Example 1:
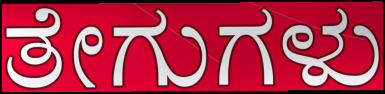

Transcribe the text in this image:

ತೇಗುಗಳು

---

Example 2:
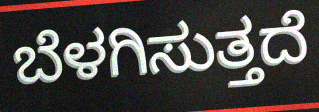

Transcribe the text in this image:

ಬೆಳಗಿಸುತ್ತದೆ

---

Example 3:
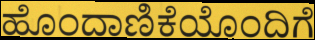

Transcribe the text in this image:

ಹೊಂದಾಣಿಕೆಯೊಂದಿಗೆ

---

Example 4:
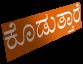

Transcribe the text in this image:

ಕೊಡುತ್ತಾರೆ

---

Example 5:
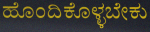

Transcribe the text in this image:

ಹೊಂದಿಕೊಳ್ಳಬೇಕು